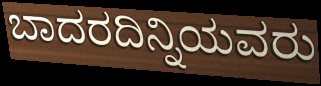
ಬಾದರದಿನ್ನಿಯವರು